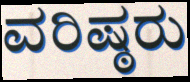
ವರಿಷ್ಠರು